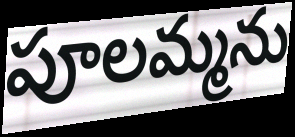
పూలమ్మను